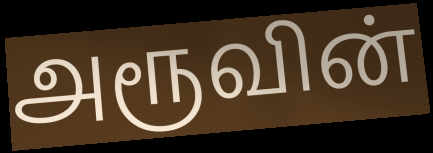
அரூவின்